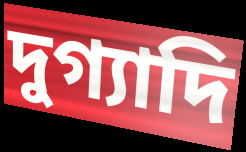
দুগ্যাদি